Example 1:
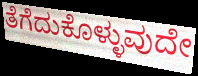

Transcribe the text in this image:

ತೆಗೆದುಕೊಳ್ಳುವುದೇ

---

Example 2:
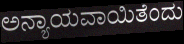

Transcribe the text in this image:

ಅನ್ಯಾಯವಾಯಿತೆಂದು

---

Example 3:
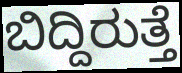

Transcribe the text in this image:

ಬಿದ್ದಿರುತ್ತೆ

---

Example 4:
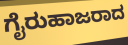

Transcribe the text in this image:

ಗೈರುಹಾಜರಾದ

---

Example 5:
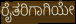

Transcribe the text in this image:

ರೈತರಿಗಾಗಿಯೇ